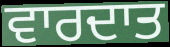
ਵਾਰਦਾਤ